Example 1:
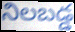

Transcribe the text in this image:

నిలబడ్డ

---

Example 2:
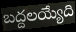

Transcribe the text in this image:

బద్దలయ్యేది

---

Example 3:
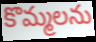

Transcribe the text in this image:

కొమ్మలను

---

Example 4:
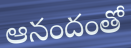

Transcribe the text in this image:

ఆనందంతో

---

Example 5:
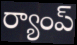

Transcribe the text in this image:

ర్యాంప్